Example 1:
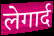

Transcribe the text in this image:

लेगार्द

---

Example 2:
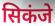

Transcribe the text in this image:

सिकंजे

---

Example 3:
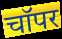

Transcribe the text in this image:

चॉपर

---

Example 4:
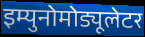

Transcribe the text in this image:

इम्युनोमोड्यूलेटर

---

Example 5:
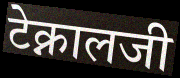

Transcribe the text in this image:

टेक्नालजी